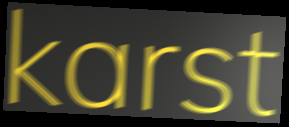
karst